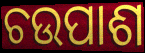
ଚଉପାଶ